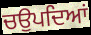
ਚਉਪਦਿਆਂ